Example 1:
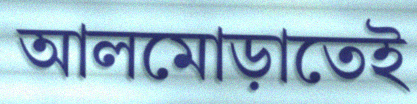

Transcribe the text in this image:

আলমোড়াতেই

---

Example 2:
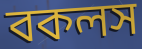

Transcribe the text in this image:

বকলস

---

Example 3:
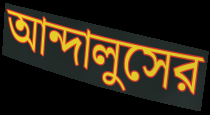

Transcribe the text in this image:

আন্দালুসের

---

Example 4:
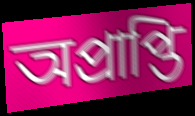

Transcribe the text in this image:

অপ্রাপ্তি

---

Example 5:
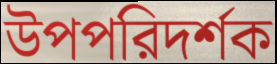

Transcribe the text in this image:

উপপরিদর্শক